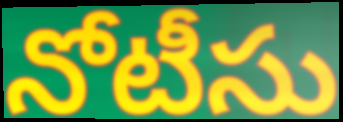
నోటీసు